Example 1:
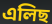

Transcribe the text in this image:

এলিছ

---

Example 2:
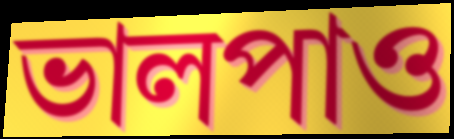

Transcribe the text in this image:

ভালপাও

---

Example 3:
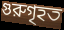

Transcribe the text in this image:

গুৰুগৃহত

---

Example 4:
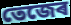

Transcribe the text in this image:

তেজেৰ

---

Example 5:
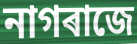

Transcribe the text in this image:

নাগৰাজে